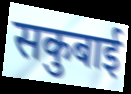
सकुबाई